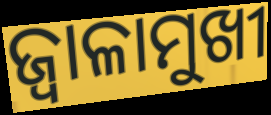
ଜ୍ୱାଳାମୁଖୀ